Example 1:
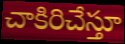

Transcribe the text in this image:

చాకిరిచేస్తూ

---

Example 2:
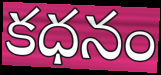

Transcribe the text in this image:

కధనం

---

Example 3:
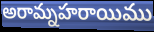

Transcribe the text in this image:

అరామ్నహరాయిము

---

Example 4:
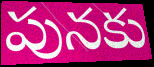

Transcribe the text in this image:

పునకు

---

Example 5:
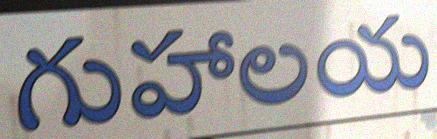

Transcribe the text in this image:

గుహాలయ